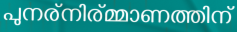
പുനര്നിര്മ്മാണത്തിന്